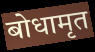
बोधामृत